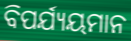
ବିପର୍ଯ୍ୟୟମାନ